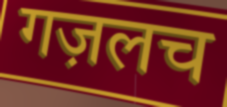
गज़लच